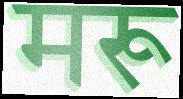
मरू